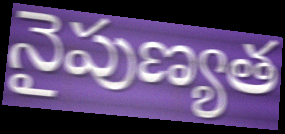
నైపుణ్యత